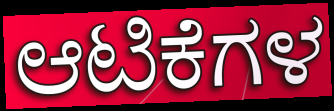
ಆಟಿಕೆಗಳ